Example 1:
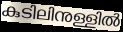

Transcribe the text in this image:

കുടിലിനുള്ളിൽ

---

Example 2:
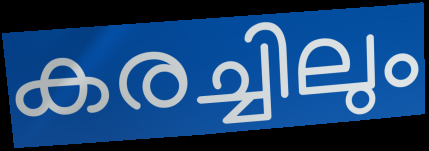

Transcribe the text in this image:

കരച്ചിലും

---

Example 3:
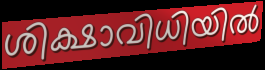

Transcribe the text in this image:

ശിക്ഷാവിധിയിൽ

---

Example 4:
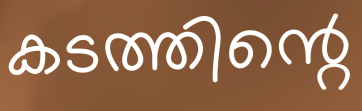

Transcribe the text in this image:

കടത്തിന്റെ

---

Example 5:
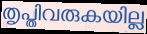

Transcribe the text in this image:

തൃപ്തിവരുകയില്ല